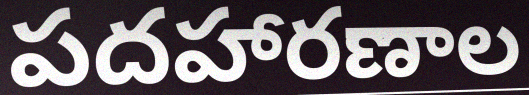
పదహారణాల